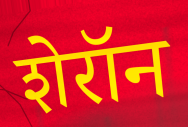
शेरॉन